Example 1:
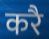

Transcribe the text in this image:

करै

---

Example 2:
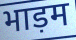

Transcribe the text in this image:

भाड़म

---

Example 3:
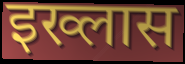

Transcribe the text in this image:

इख्लास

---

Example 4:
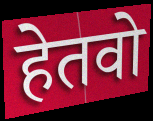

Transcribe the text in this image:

हेतवो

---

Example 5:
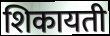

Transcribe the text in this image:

शिकायती